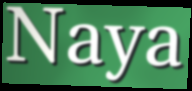
Naya